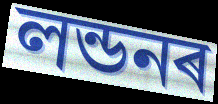
লন্ডনৰ